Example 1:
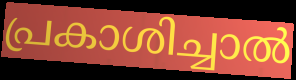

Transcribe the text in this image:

പ്രകാശിച്ചാൽ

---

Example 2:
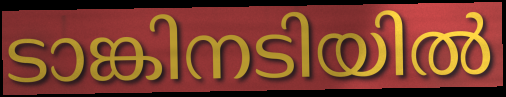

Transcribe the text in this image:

ടാങ്കിനടിയിൽ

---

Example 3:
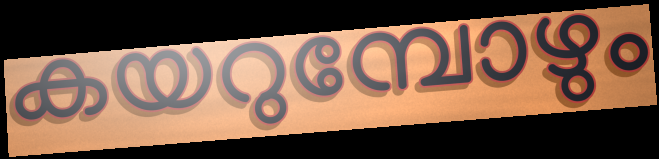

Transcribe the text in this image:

കയറുമ്പോഴും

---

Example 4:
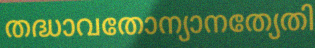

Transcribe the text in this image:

തദ്ധാവതോന്യാനത്യേതി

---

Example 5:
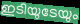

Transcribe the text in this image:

ഇടിയുടേയും